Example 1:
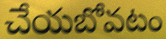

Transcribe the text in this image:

చేయబోవటం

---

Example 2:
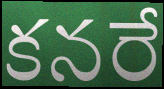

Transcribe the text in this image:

కనరే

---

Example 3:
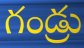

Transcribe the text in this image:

గండ్రు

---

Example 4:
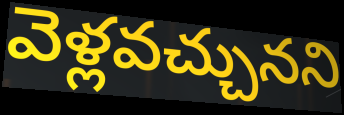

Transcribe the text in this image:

వెళ్లవచ్చునని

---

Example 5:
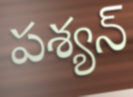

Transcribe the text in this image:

పశ్యన్